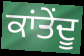
ਕਾਂਤੇਂਦੂ